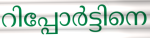
റിപ്പോർട്ടിനെ